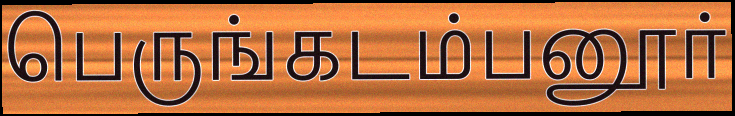
பெருங்கடம்பனூர்